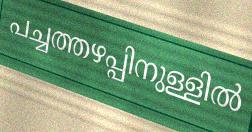
പച്ചത്തഴപ്പിനുള്ളിൽ